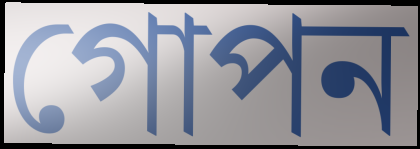
গোপন